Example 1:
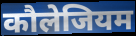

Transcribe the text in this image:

कौलेजियम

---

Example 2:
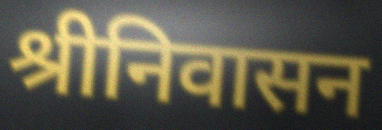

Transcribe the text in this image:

श्रीनिवासन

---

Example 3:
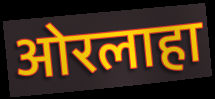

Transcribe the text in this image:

ओरलाहा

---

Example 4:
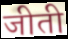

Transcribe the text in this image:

जीती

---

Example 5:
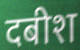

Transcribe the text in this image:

दबीश